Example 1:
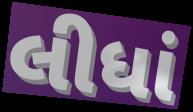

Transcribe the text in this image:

લીધાં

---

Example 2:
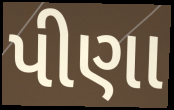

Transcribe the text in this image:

પીણા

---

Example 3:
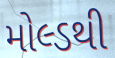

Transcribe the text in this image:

મોલ્ડથી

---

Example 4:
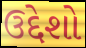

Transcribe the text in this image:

ઉદ્દેશો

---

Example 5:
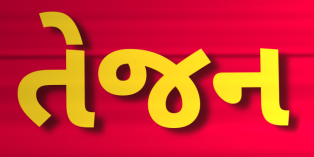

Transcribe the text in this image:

તેજન